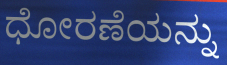
ಧೋರಣೆಯನ್ನು